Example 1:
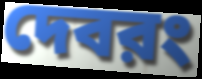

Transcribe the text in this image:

দেবরং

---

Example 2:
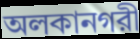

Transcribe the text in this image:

অলকানগরী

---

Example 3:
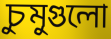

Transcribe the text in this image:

চুমুগুলো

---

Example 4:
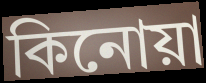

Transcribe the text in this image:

কিনোয়া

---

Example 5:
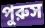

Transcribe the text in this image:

পুরুস